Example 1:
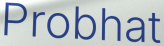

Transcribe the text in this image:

Probhat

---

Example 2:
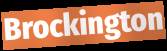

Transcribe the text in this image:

Brockington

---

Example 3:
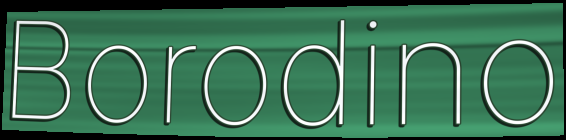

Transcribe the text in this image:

Borodino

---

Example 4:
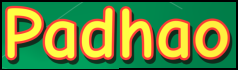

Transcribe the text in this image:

Padhao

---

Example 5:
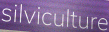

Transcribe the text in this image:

silviculture